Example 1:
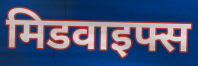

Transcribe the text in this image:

मिडवाइफ्स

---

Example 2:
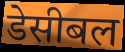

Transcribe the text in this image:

डेसीबल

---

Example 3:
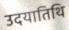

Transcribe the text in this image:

उदयातिथि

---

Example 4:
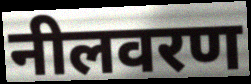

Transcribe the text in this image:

नीलवरण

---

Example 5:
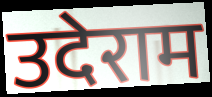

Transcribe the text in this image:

उदेराम